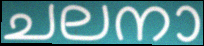
ചലനാ